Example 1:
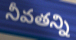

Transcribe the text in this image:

నీవతన్ని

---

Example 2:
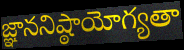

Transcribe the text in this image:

జ్ఞాననిష్ఠాయోగ్యతా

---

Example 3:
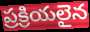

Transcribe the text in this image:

ప్రక్రియలైన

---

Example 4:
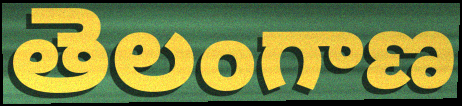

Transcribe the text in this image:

తెలంగాణ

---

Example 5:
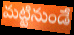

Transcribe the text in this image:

మట్టినుండే